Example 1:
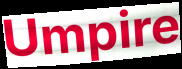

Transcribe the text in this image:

Umpire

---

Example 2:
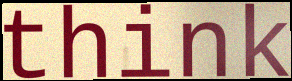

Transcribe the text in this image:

think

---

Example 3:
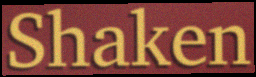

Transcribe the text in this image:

Shaken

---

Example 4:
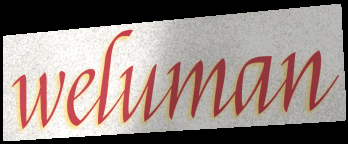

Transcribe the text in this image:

weluman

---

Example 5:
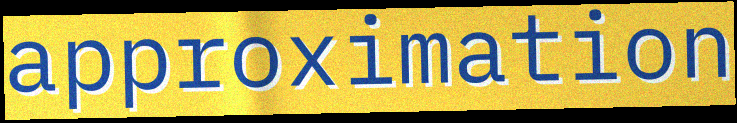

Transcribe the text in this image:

approximation